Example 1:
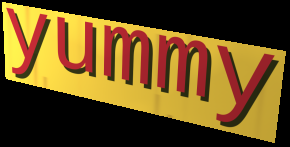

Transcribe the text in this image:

yummy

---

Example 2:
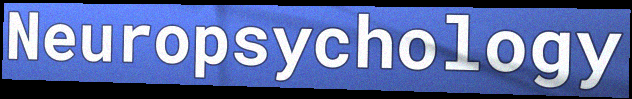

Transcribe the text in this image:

Neuropsychology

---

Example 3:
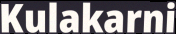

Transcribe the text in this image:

Kulakarni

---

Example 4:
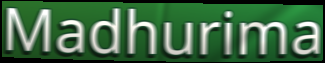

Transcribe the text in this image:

Madhurima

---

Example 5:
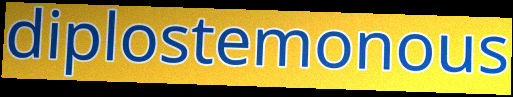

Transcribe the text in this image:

diplostemonous